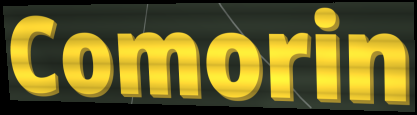
Comorin